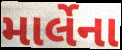
માર્લેના